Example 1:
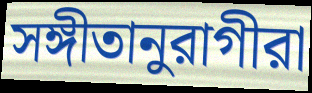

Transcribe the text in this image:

সঙ্গীতানুরাগীরা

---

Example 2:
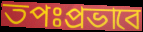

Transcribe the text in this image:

তপঃপ্রভাবে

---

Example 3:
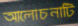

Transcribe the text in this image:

আলোচনাটি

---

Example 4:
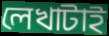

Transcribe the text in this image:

লেখাটাই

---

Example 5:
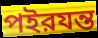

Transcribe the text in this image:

পইরযন্ত